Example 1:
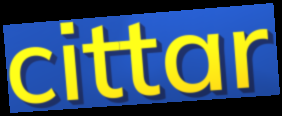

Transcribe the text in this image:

cittar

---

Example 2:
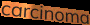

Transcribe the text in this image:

carcinoma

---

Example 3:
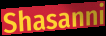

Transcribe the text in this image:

Shasanni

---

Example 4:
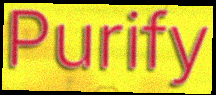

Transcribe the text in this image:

Purify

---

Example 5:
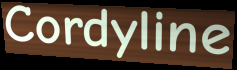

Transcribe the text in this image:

Cordyline